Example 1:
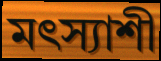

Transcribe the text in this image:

মৎস্যাশী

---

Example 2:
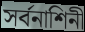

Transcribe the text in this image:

সর্বনাশিনী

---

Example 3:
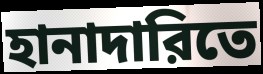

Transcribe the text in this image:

হানাদারিতে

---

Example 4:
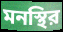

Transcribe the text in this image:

মনস্থির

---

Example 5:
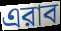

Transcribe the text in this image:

এরাব